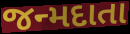
જન્મદાતા